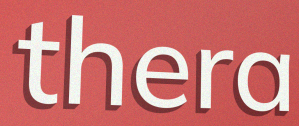
thera